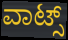
ವಾಟ್ಸ್